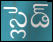
స్లెడ్